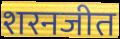
शरनजीत